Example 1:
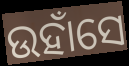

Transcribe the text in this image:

ଉହାଁସେ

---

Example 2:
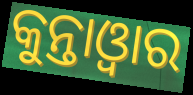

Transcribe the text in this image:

କୁନ୍ତାଓ୍ୱାର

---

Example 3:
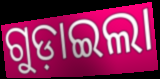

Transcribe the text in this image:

ଗୁଡ଼ାଇଲା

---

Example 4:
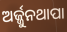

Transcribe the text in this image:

ଅର୍ଜ୍ଜୁନଥାପା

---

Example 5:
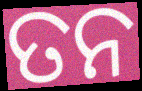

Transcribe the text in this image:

ତନ